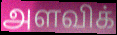
அளவிக்